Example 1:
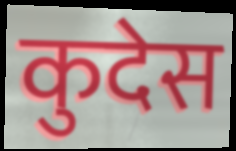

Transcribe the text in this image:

कुदेस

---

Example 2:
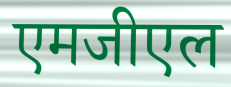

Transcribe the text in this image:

एमजीएल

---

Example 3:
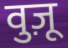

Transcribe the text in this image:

वुज़ू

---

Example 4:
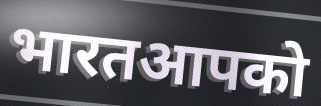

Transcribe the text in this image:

भारतआपको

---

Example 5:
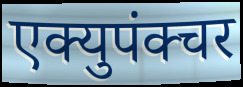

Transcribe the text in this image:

एक्युपंक्चर